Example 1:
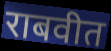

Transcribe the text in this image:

राबवीत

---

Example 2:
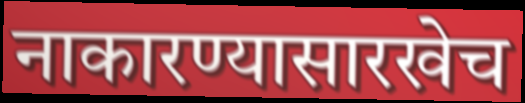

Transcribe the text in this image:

नाकारण्यासारखेच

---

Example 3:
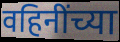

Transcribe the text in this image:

वहिनींच्या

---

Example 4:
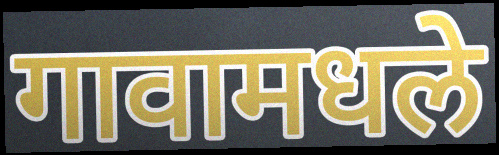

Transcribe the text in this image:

गावामधले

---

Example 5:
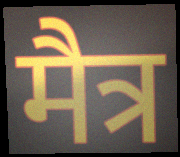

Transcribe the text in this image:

मैत्र